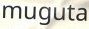
muguta